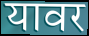
यावर